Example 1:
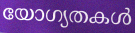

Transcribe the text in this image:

യോഗ്യതകൾ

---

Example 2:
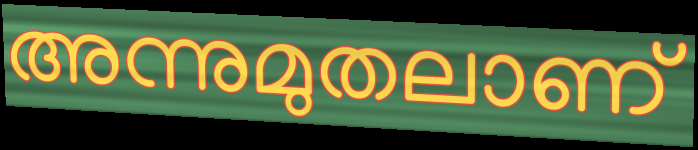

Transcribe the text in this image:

അന്നുമുതലാണ്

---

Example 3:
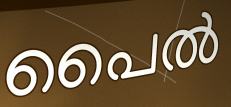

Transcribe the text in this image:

പൈൽ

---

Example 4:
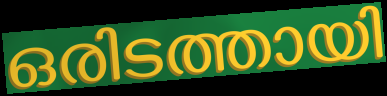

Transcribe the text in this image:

ഒരിടത്തായി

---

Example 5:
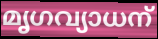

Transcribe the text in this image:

മൃഗവ്യാധന്